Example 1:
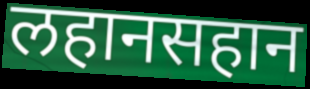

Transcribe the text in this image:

लहानसहान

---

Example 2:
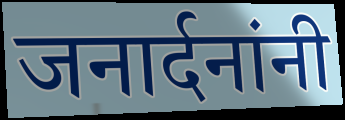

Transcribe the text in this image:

जनार्दनांनी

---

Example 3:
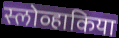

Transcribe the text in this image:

स्लोव्हाकिया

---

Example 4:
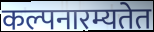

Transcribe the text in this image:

कल्पनारम्यतेत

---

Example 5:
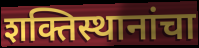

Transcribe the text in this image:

शक्तिस्थानांचा